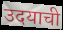
उदयाची